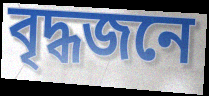
বৃদ্ধজনে